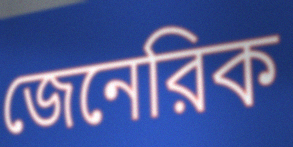
জেনেরিক